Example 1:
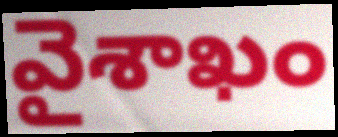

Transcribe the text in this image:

వైశాఖం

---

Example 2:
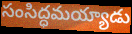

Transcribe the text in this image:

సంసిద్ధమయ్యాడు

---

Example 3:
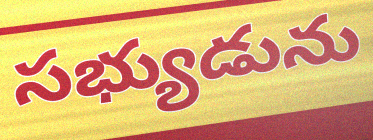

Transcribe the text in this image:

సభ్యుడును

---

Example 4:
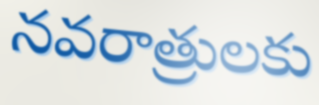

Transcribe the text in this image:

నవరాత్రులకు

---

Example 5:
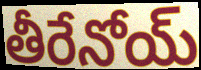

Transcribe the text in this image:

తీరేనోయ్